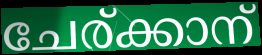
ചേര്ക്കാന്